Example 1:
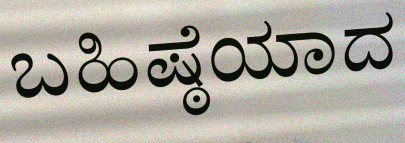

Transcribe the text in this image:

ಬಹಿಷ್ಠೆಯಾದ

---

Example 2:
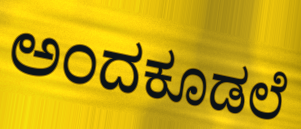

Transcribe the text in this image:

ಅಂದಕೂಡಲೆ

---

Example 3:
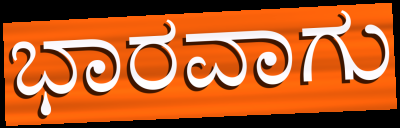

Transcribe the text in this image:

ಭಾರವಾಗು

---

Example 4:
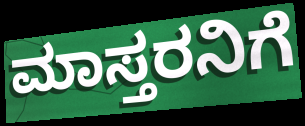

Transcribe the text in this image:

ಮಾಸ್ತರನಿಗೆ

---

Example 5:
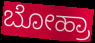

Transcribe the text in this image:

ಬೋಹ್ರಾ